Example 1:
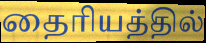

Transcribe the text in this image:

தைரியத்தில்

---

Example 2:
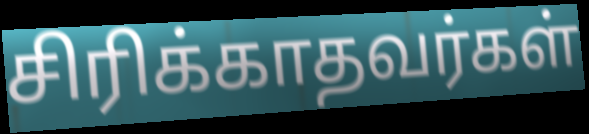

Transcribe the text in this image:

சிரிக்காதவர்கள்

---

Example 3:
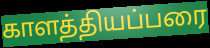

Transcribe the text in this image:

காளத்தியப்பரை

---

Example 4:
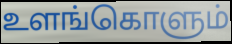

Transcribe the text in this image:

உளங்கொளும்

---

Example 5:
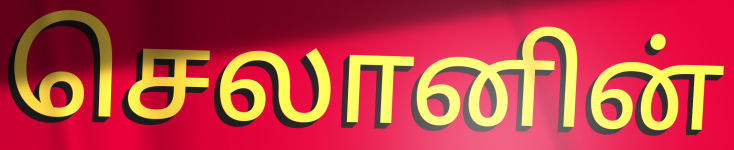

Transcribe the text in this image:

செலானின்